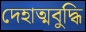
দেহাত্মবুদ্ধি